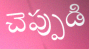
చెప్పుడి